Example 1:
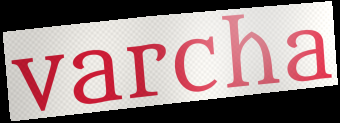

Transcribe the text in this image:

varcha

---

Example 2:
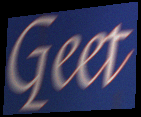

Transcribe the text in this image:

Geet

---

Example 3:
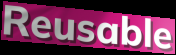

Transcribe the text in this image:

Reusable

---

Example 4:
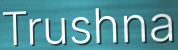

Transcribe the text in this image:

Trushna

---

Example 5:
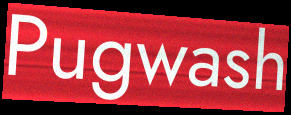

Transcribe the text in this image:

Pugwash